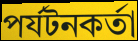
পর্যটনকর্তা